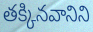
తక్కినవానిని